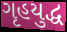
ગૃહયુદ્ધ